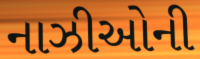
નાઝીઓની